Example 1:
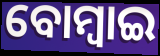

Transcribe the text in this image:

ବୋମ୍ୱାଇ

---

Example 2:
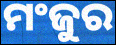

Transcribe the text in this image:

ମଂଜୁର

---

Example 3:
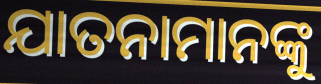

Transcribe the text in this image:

ଯାତନାମାନଙ୍କୁ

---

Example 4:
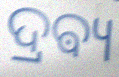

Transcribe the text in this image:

ଦ୍ରଵ୍ୟ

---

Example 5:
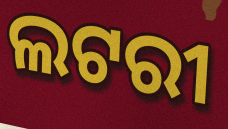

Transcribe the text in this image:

ଲଟରୀ